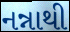
નન્નાથી